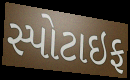
સ્પોટાઇફ